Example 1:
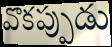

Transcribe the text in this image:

వొకప్పుడు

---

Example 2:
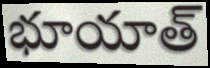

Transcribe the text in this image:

భూయాత్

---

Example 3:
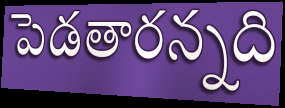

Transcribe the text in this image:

పెడతారన్నది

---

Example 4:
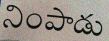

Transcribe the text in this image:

నింపాడు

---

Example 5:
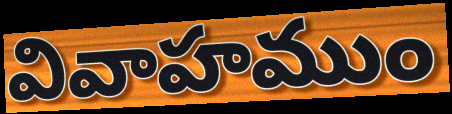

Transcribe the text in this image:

వివాహముం